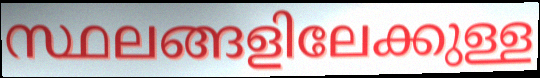
സ്ഥലങ്ങളിലേക്കുള്ള